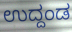
ಉದ್ದಂಡ